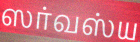
ஸர்வஸ்ய